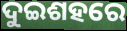
ଦୁଇଶହରେ